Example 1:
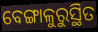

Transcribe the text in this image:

ବେଙ୍ଗାଳୁରୁସ୍ଥିତ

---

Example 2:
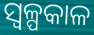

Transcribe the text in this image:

ସ୍ୱଳ୍ପକାଳ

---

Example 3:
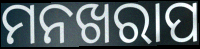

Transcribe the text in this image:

ମନଖରାପ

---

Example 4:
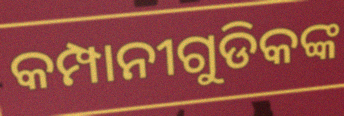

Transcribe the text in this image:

କମ୍ପାନୀଗୁଡିକଙ୍କ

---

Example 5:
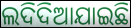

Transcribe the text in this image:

ଲଦିଦିଆଯାଇଛି